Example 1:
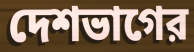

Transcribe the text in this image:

দেশভাগের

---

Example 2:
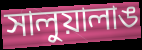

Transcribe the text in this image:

সালুয়ালাঙ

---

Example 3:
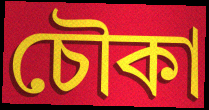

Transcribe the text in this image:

চৌকা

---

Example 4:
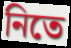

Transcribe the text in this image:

নিতে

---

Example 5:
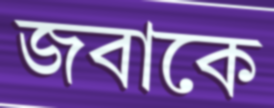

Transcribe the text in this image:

জবাকে